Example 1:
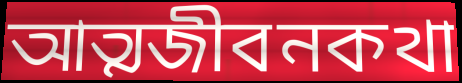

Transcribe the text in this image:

আত্মজীবনকথা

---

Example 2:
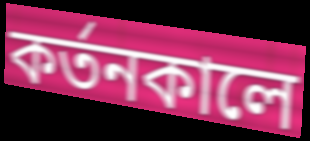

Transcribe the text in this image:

কর্তনকালে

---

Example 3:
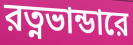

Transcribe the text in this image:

রত্নভান্ডারে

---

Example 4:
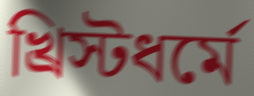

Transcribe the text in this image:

খ্রিস্টধর্মে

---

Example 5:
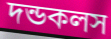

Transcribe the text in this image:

দন্ডকলস